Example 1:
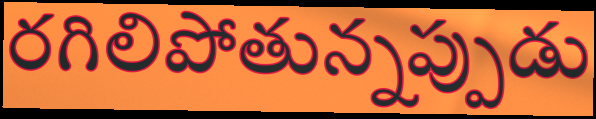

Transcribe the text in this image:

రగిలిపోతున్నప్పుడు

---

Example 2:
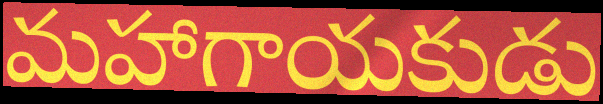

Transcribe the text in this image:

మహాగాయకుడు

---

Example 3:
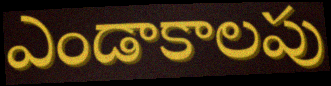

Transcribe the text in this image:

ఎండాకాలపు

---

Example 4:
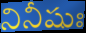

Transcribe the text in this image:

నినీషుః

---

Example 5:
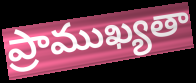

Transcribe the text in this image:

ప్రాముఖ్యతా